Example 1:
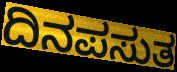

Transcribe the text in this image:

ದಿನಪಸುತ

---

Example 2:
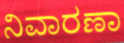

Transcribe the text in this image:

ನಿವಾರಣಾ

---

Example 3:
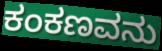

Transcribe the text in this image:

ಕಂಕಣವನು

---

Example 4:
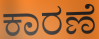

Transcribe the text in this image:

ಕಾರಣೆ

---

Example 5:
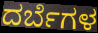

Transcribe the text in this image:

ದರ್ಬೆಗಳ